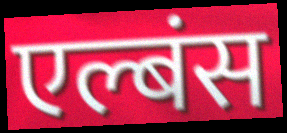
एल्बंस